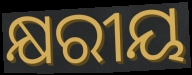
କ୍ଷରୀୟ